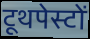
टूथपेस्टों